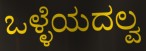
ಒಳ್ಳೆಯದಲ್ವ